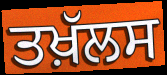
ਤਖ਼ੱਲਸ